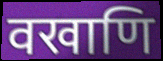
वखाणि